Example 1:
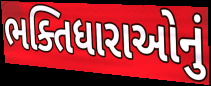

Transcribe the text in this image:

ભક્તિધારાઓનું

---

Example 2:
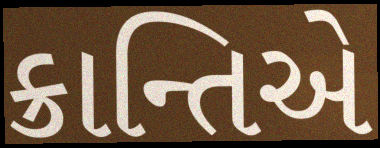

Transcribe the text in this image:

ક્રાન્તિએ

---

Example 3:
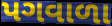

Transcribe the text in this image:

પગવાળા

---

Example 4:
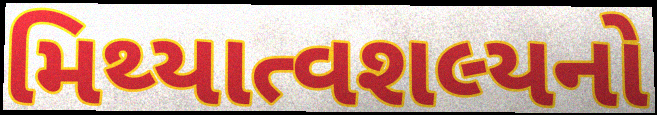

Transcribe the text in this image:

મિથ્યાત્વશલ્યનો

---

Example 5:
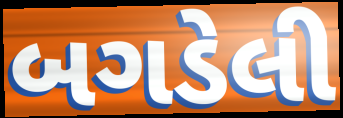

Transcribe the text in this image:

બગડેલી